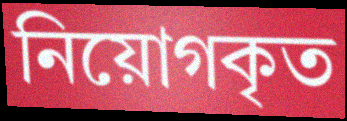
নিয়োগকৃত